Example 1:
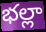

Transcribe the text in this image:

భల్లా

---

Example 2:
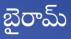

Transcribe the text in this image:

బైరామ్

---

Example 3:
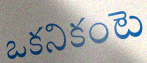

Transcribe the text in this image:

ఒకనికంటె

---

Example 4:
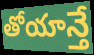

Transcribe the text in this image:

తోయాన్తే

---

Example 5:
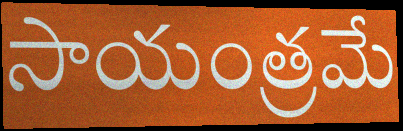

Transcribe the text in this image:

సాయంత్రమే